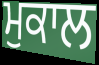
ਮੁਕਾਲ